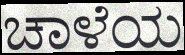
ಚಾಳೆಯ